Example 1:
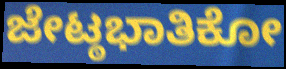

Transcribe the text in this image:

ಜೇಟ್ಠಭಾತಿಕೋ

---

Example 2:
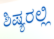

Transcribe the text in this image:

ಶಿಷ್ಯರಲ್ಲಿ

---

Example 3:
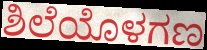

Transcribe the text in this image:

ಶಿಲೆಯೊಳಗಣ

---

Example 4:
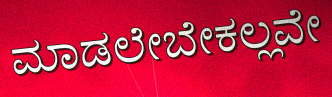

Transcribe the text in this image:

ಮಾಡಲೇಬೇಕಲ್ಲವೇ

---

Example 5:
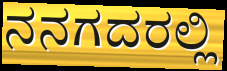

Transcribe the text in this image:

ನನಗದರಲ್ಲಿ